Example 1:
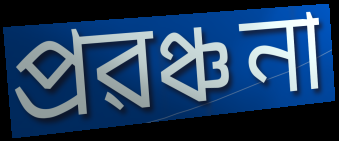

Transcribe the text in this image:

প্ৰৱঞ্চনা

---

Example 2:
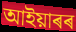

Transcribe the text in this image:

আইয়াৰৰ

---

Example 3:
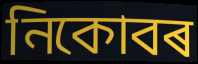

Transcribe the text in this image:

নিকোবৰ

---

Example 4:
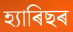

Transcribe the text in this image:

হ্যাৰিছৰ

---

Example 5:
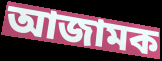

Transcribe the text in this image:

আজামক